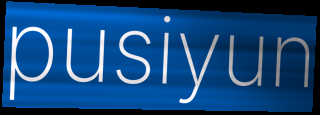
pusiyun